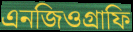
এনজিওগ্রাফি